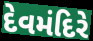
દેવમંદિરે